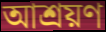
আশ্রয়ণ